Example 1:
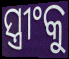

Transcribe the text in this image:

ସ୍ତ୍ରୀଂକୁ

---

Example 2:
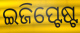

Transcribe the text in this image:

ଇଜିପ୍ଟେଷ୍ଟ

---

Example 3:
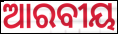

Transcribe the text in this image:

ଆରବୀୟ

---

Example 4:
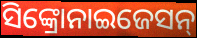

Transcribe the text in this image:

ସିଙ୍କ୍ରୋନାଇଜେସନ୍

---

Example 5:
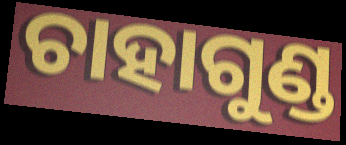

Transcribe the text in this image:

ଚାହାଗୁଣ୍ଡ